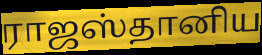
ராஜஸ்தானிய